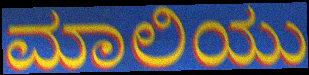
ಮಾಲಿಯು